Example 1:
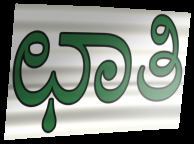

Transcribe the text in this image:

ಛಾತಿ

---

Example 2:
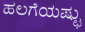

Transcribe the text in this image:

ಹಲಗೆಯಷ್ಟು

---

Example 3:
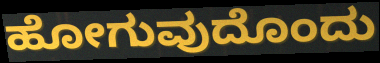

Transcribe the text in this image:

ಹೋಗುವುದೊಂದು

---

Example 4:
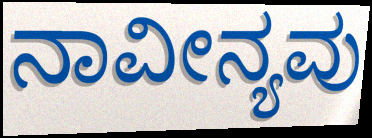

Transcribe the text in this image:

ನಾವೀನ್ಯವು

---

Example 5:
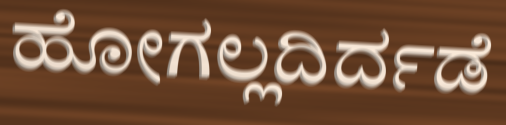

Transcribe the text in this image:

ಹೋಗಲ್ಲದಿರ್ದಡೆ